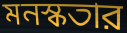
মনস্কতার